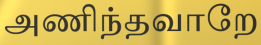
அணிந்தவாறே